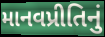
માનવપ્રીતિનું